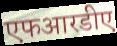
एफआरडीए